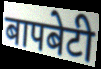
बापबेटी